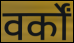
वर्कों